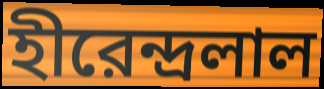
হীরেন্দ্রলাল